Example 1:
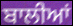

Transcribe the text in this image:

ਬਾਲੀਆਂ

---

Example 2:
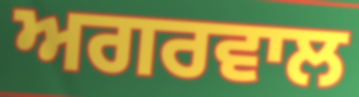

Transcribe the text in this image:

ਅਗਰਵਾਲ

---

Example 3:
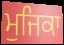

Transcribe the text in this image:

ਮੁਜਿਕਾ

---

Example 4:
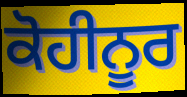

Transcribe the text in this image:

ਕੋਹੀਨੂਰ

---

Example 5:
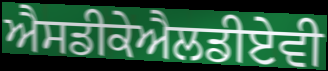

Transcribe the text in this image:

ਐਸਡੀਕੇਐਲਡੀਏਵੀ